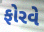
ફોરવે